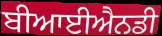
ਬੀਆਈਐਨਡੀ